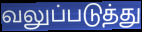
வலுப்படுத்து